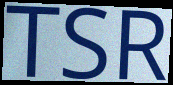
TSR